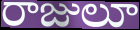
రాజులూ